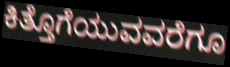
ಕಿತ್ತೊಗೆಯುವವರೆಗೂ